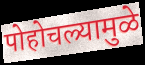
पोहोचल्यामुळे